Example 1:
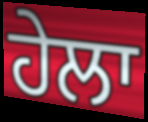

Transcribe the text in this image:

ਹੇਲਾ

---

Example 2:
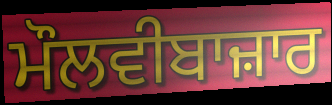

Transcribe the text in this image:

ਮੌਲਵੀਬਾਜ਼ਾਰ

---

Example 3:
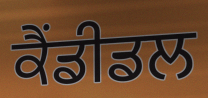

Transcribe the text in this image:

ਕੈਂਡੀਡਲ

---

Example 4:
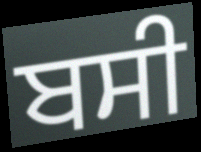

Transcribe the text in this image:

ਬਸੀ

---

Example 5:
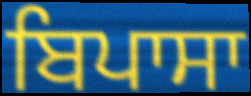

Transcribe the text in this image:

ਬਿਪਾਸਾ